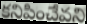
కనిపించేవని